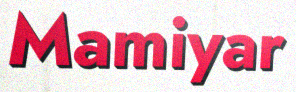
Mamiyar